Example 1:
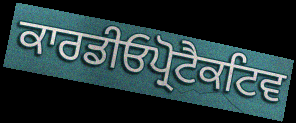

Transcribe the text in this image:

ਕਾਰਡੀਓਪ੍ਰੋਟੈਕਟਿਵ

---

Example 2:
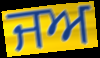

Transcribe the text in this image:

ਜਅ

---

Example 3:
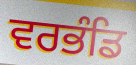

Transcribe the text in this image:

ਵਰਭੰਡਿ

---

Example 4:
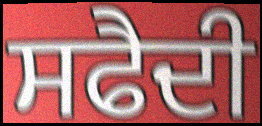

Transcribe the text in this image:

ਸਫੈਦੀ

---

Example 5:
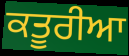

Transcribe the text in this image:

ਕਤੂਰੀਆ